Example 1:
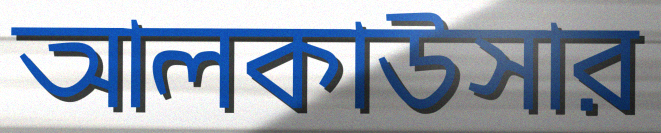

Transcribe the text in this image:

আলকাউসার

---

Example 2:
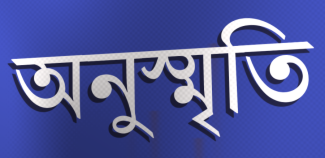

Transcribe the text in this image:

অনুস্মৃতি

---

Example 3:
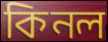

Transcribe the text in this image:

কিনল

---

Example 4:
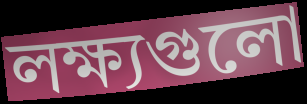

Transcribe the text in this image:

লক্ষ্যগুলো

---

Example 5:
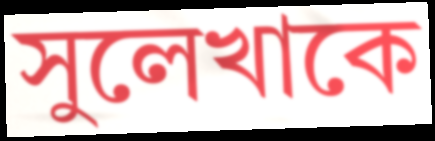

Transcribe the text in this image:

সুলেখাকে